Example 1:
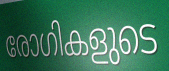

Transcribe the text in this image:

രോഗികളുടെ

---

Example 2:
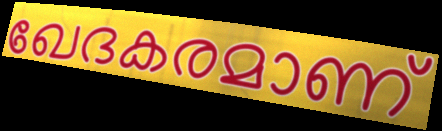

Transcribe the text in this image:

ഖേദകരമാണ്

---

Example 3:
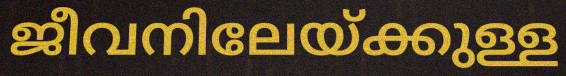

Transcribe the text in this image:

ജീവനിലേയ്ക്കുള്ള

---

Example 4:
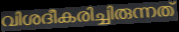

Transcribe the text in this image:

വിശദീകരിച്ചിരുന്നത്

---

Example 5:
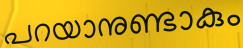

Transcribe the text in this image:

പറയാനുണ്ടാകും